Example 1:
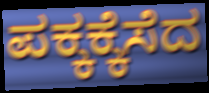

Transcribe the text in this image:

ಪಕ್ಕಕ್ಕೆಸೆದ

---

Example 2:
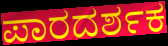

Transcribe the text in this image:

ಪಾರದರ್ಶಕ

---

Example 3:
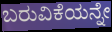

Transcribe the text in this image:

ಬರುವಿಕೆಯನ್ನೇ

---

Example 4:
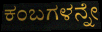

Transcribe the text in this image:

ಕಂಬಗಳನ್ನೇ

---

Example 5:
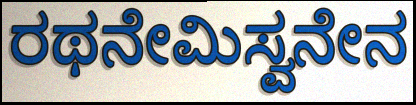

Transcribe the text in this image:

ರಥನೇಮಿಸ್ವನೇನ